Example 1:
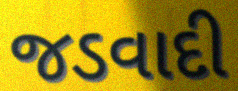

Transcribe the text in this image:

જડવાદી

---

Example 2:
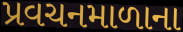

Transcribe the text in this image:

પ્રવચનમાળાના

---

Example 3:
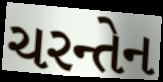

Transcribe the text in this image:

ચરન્તેન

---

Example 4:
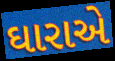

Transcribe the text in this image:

ઘારાએ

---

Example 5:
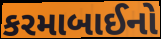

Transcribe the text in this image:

કરમાબાઈનો